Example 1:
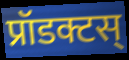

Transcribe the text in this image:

प्रॉडक्टस्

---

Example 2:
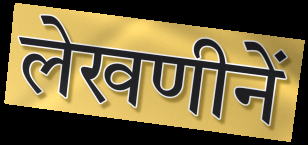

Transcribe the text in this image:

लेखणीनें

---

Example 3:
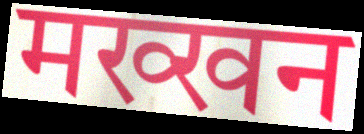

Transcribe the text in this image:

मख्खन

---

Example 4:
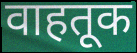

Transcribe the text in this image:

वाहतूक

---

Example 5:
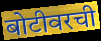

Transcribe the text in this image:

बोटीवरची